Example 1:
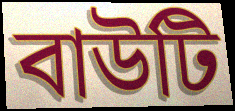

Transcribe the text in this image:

বাউটি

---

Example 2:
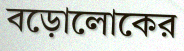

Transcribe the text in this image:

বড়োলোকের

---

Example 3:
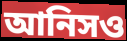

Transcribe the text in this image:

আনিসও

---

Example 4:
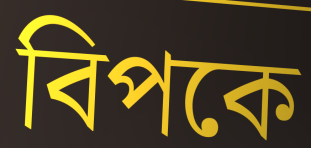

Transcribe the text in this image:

বিপকে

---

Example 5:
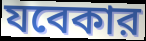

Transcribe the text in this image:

যবেকার